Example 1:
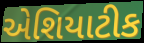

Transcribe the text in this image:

એશિયાટીક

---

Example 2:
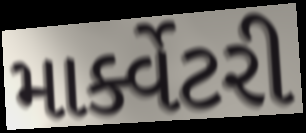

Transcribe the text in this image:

માર્ક્વેટરી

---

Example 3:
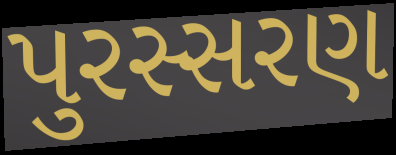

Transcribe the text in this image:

પુરસ્સરણ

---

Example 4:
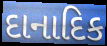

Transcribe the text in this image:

દાનાદિક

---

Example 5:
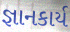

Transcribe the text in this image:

જ્ઞાનકાર્ય